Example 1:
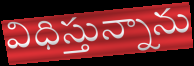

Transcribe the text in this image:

విధిస్తున్నాను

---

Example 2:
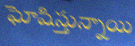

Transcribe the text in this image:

ఘోషిస్తున్నాయి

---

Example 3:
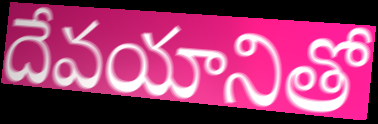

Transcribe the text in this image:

దేవయానితో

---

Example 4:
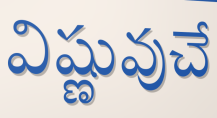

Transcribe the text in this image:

విష్ణువుచే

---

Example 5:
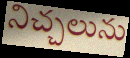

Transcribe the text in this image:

నిచ్చలును